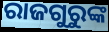
ରାଜଗୁରୁଙ୍କ